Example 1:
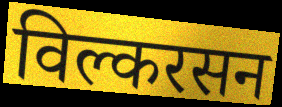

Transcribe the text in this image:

विल्करसन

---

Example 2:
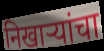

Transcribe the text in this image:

निखार्‍यांचा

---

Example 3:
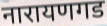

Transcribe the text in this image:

नारायणगड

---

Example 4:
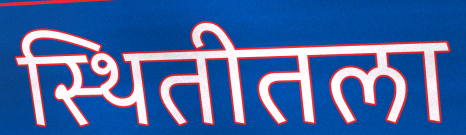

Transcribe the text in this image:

स्थितीतला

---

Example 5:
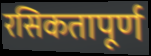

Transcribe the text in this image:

रसिकतापूर्ण